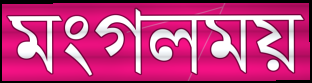
মংগলময়